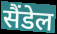
सैंडेल